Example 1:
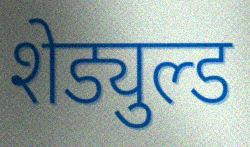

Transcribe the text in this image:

शेड्युल्ड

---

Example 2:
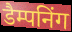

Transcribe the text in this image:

डैम्पनिंग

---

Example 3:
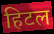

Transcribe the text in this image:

हिटल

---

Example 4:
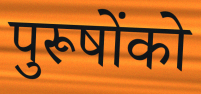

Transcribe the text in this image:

पुरूषोंको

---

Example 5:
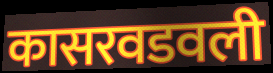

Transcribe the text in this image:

कासरवडवली